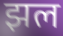
झल